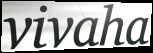
vivaha